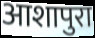
आशापुरा